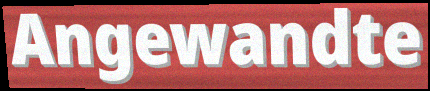
Angewandte